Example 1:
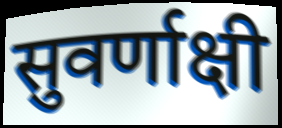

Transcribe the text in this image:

सुवर्णाक्षी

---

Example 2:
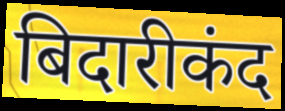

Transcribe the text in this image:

बिदारीकंद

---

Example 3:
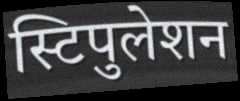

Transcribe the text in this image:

स्टिपुलेशन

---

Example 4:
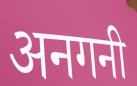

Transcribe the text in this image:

अनगनी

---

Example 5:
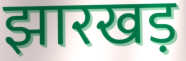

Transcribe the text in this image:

झारखड़